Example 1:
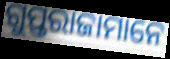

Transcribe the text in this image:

ଗୁପ୍ତରାଜାମାନେ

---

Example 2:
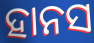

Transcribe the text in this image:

ହାନସ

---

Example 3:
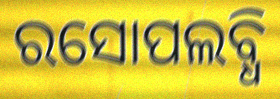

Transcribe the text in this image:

ରସୋପଲବ୍ଧି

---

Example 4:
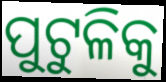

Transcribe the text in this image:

ପୁଟୁଳିକୁ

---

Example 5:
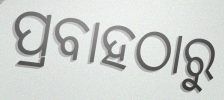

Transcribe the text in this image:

ପ୍ରବାହଠାରୁ